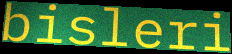
bisleri